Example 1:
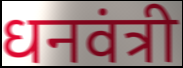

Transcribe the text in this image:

धनवंत्री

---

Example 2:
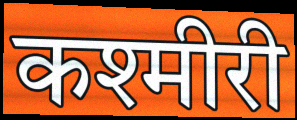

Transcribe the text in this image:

कश्‍मीरी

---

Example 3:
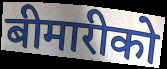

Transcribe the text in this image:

बीमारीको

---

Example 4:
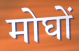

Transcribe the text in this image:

मोघों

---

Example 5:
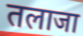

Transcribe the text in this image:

तलाजा